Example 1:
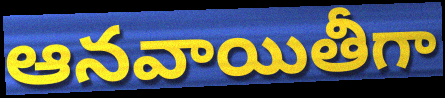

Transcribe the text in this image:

ఆనవాయితీగా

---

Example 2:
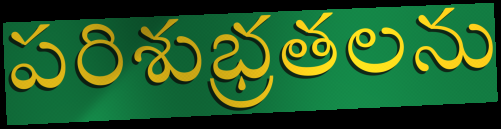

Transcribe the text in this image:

పరిశుభ్రతలను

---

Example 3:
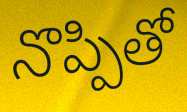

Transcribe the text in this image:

నొప్పితో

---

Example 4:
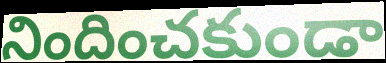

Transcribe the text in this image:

నిందించకుండా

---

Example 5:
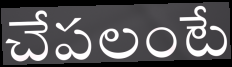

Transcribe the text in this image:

చేపలంటే